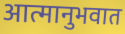
आत्मानुभवात